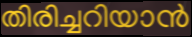
തിരിച്ചറിയാൻ